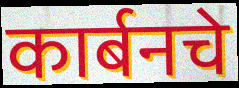
कार्बनचे